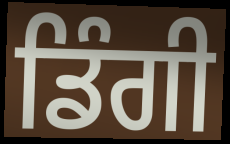
ਡਿੰਗੀ